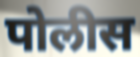
पोलीस